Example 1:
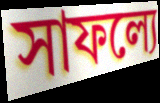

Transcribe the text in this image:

সাফল্যে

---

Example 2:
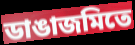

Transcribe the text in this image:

ডাঙাজমিতে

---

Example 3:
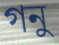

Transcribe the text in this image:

গনু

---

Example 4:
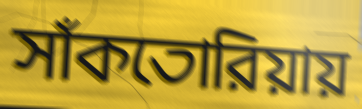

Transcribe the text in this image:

সাঁকতোরিয়ায়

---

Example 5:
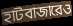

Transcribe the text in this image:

হাটবাজারেও